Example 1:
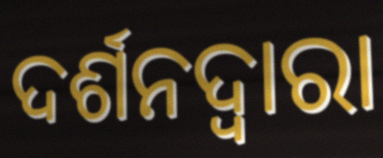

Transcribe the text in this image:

ଦର୍ଶନଦ୍ୱାରା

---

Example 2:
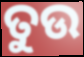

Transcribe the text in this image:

ତୁଉ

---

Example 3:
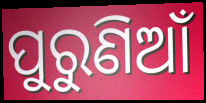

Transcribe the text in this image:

ପୁରୁଣିଆଁ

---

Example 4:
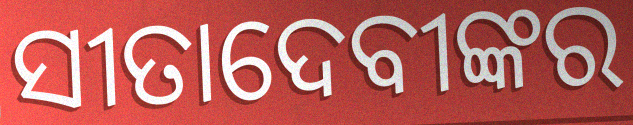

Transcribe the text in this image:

ସୀତାଦେବୀଙ୍କର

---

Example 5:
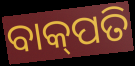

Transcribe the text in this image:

ବାକ୍‌ପତି